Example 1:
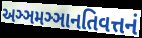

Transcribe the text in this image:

અઞ્ઞમઞ્ઞાનતિવત્તનં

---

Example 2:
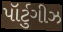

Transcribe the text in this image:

પૉર્ટુગીઝ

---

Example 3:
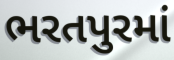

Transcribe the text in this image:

ભરતપુરમાં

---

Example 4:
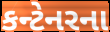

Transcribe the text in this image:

કન્ટેનરના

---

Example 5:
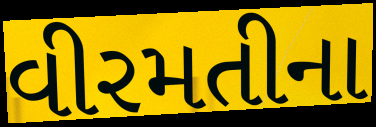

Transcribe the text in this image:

વીરમતીના